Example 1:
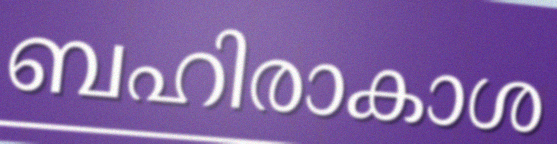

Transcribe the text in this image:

ബഹിരാകാശ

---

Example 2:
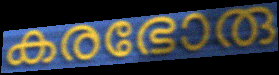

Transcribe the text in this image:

കരഭോരു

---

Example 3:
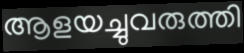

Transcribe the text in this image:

ആളയച്ചുവരുത്തി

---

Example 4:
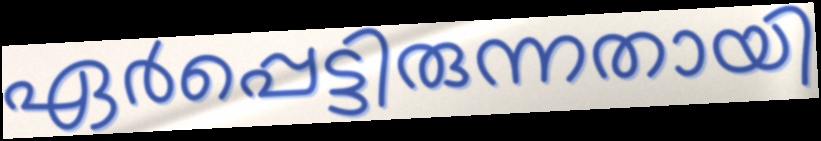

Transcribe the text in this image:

ഏർപ്പെട്ടിരുന്നതായി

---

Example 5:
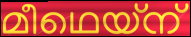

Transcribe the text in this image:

മീഥെയ്ന്